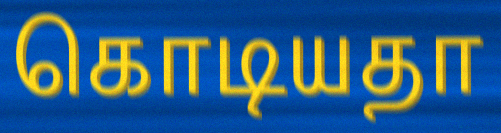
கொடியதா